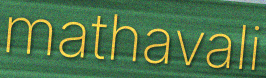
mathavali